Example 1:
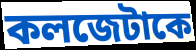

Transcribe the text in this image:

কলজেটাকে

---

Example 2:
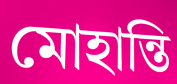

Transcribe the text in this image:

মোহান্তি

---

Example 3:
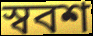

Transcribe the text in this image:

স্ববশ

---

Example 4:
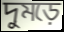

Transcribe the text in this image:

দুমড়ে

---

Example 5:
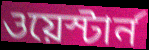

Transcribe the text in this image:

ওয়েস্টার্ন